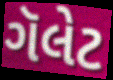
ગૅલેટ